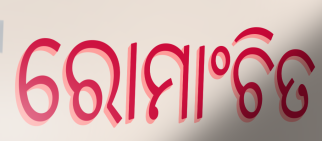
ରୋମାଂଚିତ